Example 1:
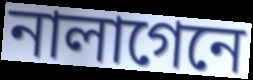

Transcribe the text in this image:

নালাগেনে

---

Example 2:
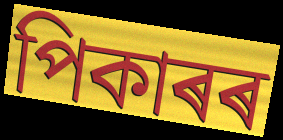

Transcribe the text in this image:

পিকাৰৰ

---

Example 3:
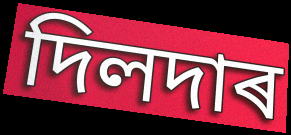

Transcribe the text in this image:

দিলদাৰ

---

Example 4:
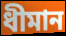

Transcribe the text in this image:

ধীমান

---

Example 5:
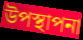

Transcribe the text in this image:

উপস্থাপনা